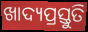
ଖାଦ୍ୟପ୍ରସ୍ତୁତି